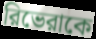
রিভেরাকে